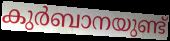
കുർബാനയുണ്ട്